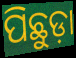
ପିଛୁଡ଼ା